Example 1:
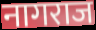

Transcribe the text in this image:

नागराज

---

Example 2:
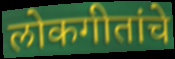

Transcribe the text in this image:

लोकगीतांचे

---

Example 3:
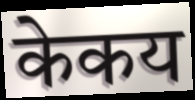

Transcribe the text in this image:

केकय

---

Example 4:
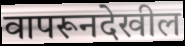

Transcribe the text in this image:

वापरूनदेखील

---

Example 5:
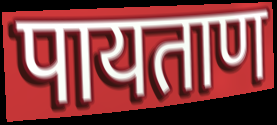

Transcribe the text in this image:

पायताण